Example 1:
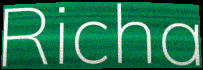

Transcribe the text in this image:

Richa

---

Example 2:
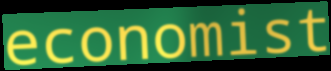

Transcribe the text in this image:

economist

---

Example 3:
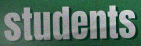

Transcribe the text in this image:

students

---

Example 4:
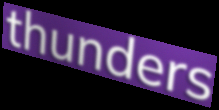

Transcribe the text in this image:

thunders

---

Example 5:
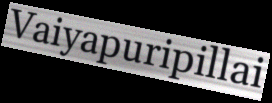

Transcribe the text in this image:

Vaiyapuripillai